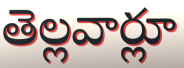
తెల్లవార్లూ